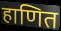
हाणित